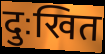
दुःखित